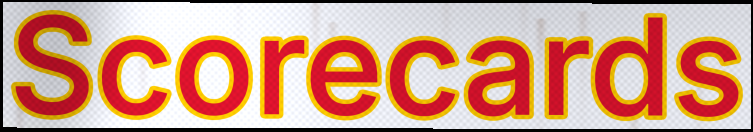
Scorecards